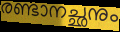
രണ്ടാനച്ഛനും